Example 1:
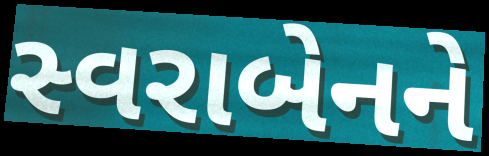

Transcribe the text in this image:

સ્વરાબેનને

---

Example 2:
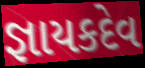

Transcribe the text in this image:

જ્ઞાયકદેવ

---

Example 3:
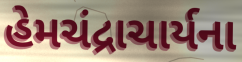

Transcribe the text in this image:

હેમચંદ્રાચાર્યના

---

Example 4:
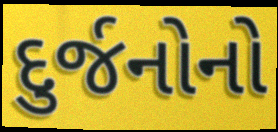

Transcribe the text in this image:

દુર્જનોનો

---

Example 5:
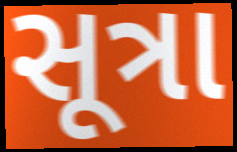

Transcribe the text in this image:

સૂત્રા